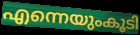
എന്നെയുംകൂടി